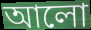
আলো